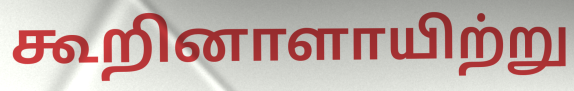
கூறினாளாயிற்று